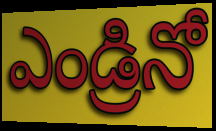
ఎండ్రినో